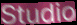
Studio